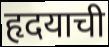
हृदयाची